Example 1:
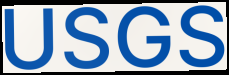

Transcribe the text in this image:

USGS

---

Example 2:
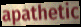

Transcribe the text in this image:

apathetic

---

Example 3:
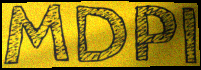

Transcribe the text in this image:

MDPI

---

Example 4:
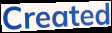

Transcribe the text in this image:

Created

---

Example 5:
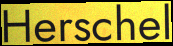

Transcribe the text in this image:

Herschel